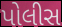
પોલીસ